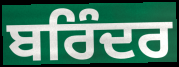
ਬਰਿੰਦਰ